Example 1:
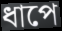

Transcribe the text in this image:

ধাপে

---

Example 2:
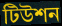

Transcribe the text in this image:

টিউশন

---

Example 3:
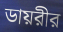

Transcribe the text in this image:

ডায়রীর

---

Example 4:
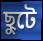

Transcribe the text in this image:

ছুটে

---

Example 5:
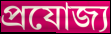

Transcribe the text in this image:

প্রযোজ্য